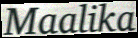
Maalika